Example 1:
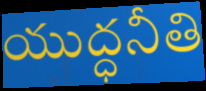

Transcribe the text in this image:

యుద్ధనీతి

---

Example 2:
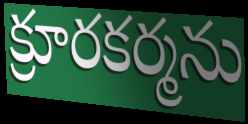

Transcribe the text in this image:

క్రూరకర్మను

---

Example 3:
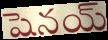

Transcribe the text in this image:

షెనయ్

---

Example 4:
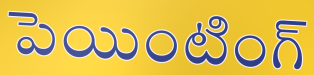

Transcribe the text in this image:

పెయింటింగ్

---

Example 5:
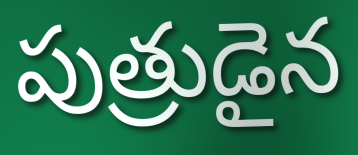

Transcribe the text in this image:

పుత్రుడైన